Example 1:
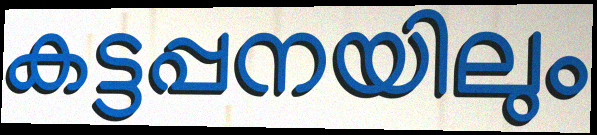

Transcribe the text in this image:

കട്ടപ്പനയിലും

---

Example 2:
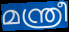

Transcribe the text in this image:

മന്ത്രീ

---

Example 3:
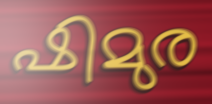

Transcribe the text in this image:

ഷിമുര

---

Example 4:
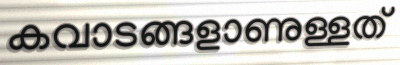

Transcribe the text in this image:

കവാടങ്ങളാണുള്ളത്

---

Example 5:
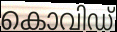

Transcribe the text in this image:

കൊവിഡ്